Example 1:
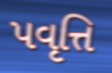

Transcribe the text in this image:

પવૃત્તિ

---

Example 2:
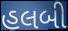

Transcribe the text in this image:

હલબી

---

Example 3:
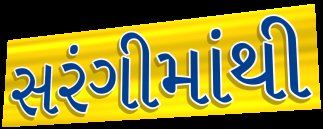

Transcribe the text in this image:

સરંગીમાંથી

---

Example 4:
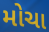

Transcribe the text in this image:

મોચા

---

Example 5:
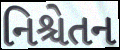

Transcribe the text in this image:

નિશ્ચેતન